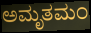
ಅಮೃತಮಂ